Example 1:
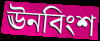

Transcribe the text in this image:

ঊনবিংশ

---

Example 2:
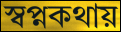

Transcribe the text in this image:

স্বপ্নকথায়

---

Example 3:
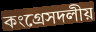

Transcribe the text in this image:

কংগ্রেসদলীয়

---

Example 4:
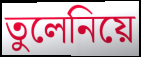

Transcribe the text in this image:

তুলেনিয়ে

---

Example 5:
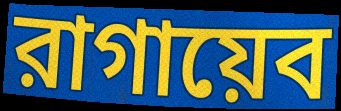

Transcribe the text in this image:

রাগায়েব